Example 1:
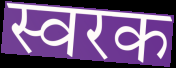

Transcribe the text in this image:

स्वरक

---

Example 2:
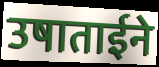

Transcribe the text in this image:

उषाताईने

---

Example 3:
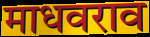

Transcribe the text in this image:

माधवराव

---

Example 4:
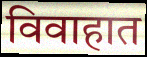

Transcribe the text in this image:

विवाहात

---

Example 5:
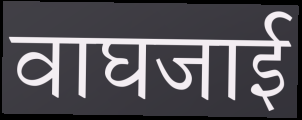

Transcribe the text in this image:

वाघजाई